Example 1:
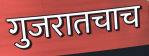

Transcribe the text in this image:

गुजरातचाच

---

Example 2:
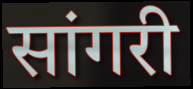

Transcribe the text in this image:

सांगरी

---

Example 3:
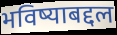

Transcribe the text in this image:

भविष्याबद्दल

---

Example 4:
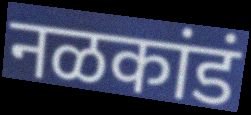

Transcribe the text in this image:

नळकांडं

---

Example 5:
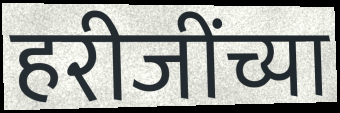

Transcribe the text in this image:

हरीजींच्या